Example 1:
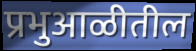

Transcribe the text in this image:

प्रभुआळीतील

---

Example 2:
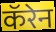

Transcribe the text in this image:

कॅरेन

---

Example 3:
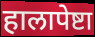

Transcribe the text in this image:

हालापेष्टा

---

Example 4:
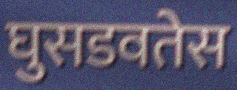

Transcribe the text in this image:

घुसडवतेस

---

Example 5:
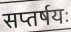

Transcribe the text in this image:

सप्तर्षयः